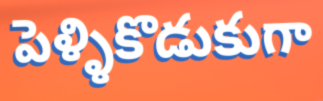
పెళ్ళికొడుకుగా